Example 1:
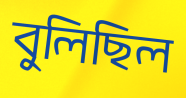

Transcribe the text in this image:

বুলিছিল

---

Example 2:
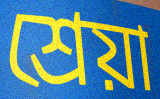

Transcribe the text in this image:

শ্ৰেয়া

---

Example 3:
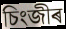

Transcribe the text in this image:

চিংজীৰ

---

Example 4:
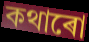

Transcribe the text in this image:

কথাৰো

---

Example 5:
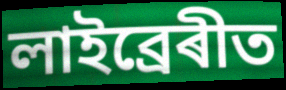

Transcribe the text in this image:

লাইব্ৰেৰীত